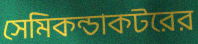
সেমিকন্ডাকটরের